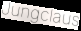
Jungclaus